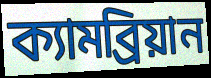
ক্যামব্রিয়ান